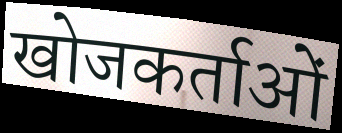
खोजकर्ताओं